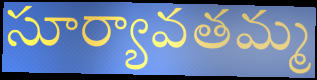
సూర్యావతమ్మ